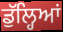
ਡੁੱਲ੍ਹਿਆਂ